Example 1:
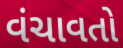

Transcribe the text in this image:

વંચાવતો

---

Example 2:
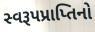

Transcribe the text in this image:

સ્વરૂપપ્રાપ્તિનો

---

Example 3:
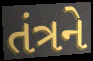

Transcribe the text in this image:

તંત્રને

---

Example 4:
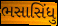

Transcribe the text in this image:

ભસાસિંધુ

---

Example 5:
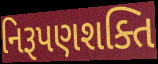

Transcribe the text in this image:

નિરૂપણશક્તિ